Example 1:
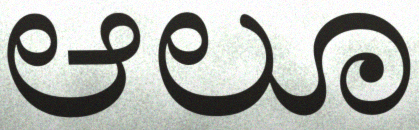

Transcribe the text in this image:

ಆಲೂ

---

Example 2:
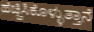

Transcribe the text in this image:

ಹೆಚ್ಚಿಸಿಕೊಳ್ಳುತ್ತಾನೆ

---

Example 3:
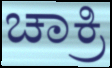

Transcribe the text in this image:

ಚಾಕ್ರಿ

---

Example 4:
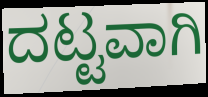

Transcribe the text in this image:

ದಟ್ಟವಾಗಿ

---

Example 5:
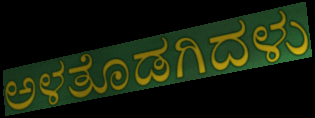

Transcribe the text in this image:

ಅಳತೊಡಗಿದಳು